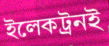
ইলেকট্রনই